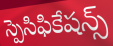
స్పెసిఫికేషన్స్